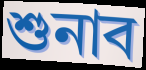
শুনাব